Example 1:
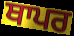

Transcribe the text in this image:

ਥਾਪਰ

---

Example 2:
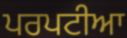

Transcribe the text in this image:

ਪਰਪਟੀਆ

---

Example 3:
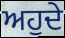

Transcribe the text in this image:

ਅਹੁਦੇ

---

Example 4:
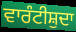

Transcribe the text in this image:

ਵਾਰੰਟੀਸ਼ੁਦਾ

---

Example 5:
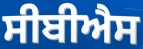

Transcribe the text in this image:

ਸੀਬੀਐਸ